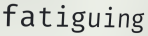
fatiguing